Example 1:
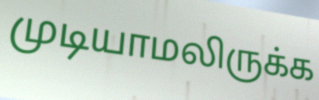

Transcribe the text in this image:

முடியாமலிருக்க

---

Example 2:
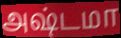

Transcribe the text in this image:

அஷ்டமா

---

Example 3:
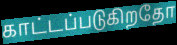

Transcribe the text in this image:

காட்டப்படுகிறதோ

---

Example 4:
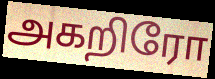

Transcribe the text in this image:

அகறிரோ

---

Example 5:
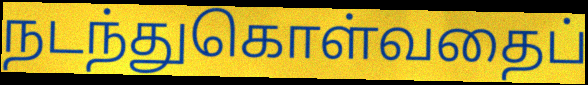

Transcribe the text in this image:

நடந்துகொள்வதைப்